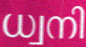
ധ്വനി